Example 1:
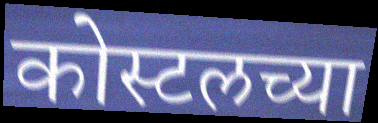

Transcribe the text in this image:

कोस्टलच्या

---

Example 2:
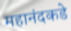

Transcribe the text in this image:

महानंदकडे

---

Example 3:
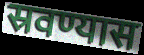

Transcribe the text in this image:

स्रवण्यास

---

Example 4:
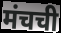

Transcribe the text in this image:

मंचची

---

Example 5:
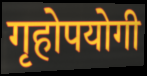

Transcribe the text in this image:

गृहोपयोगी